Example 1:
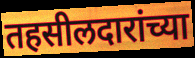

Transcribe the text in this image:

तहसीलदारांच्या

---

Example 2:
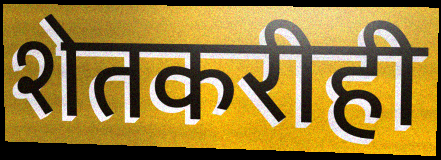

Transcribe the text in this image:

शेतकरीही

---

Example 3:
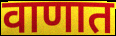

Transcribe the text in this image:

वाणात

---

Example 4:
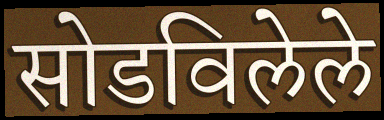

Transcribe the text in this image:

सोडविलेले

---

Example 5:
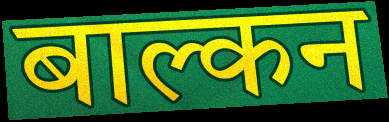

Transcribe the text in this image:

बाल्कन